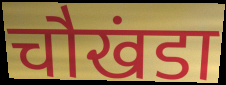
चौखंडा